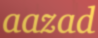
aazad